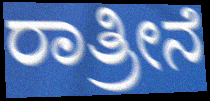
ರಾತ್ರೀನೆ